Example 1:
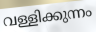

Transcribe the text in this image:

വള്ളിക്കുന്നം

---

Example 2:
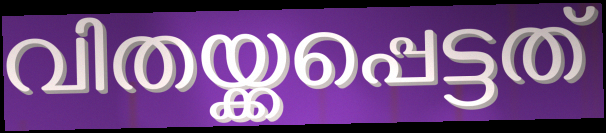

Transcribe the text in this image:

വിതയ്ക്കപ്പെട്ടത്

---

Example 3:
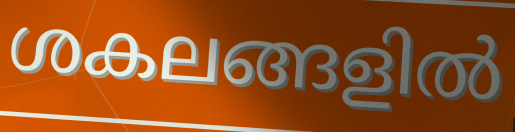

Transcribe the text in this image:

ശകലങ്ങളിൽ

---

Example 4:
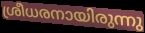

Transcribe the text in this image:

ശ്രീധരനായിരുന്നു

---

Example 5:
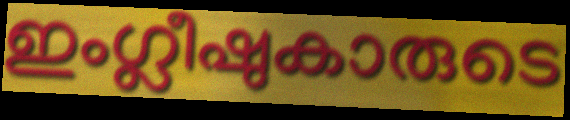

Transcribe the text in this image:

ഇംഗ്ലീഷുകാരുടെ